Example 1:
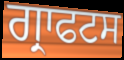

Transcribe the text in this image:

ਗ੍ਰਾਫਟਸ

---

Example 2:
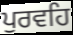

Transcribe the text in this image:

ਪੁਰਵਹਿ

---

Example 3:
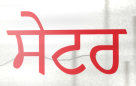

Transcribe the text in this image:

ਸੇਟਰ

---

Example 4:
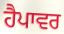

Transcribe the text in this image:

ਹੈਪਾਵਰ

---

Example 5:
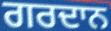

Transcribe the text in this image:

ਗਰਦਾਨ